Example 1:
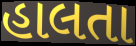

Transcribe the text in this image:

હાલતા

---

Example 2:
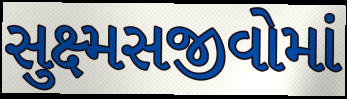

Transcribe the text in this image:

સુક્ષ્મસજીવોમાં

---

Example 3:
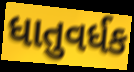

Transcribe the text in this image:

ધાતુવર્ધક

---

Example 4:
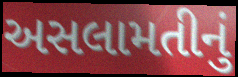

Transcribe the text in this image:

અસલામતીનું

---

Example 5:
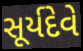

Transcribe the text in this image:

સૂર્યદેવે